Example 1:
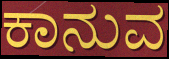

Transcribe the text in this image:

ಕಾನುವ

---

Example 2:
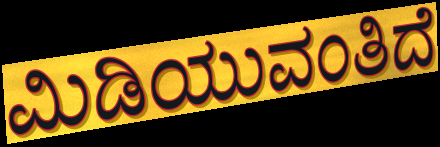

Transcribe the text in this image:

ಮಿಡಿಯುವಂತಿದೆ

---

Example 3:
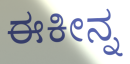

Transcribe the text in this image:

ಈಕೀನ್ನ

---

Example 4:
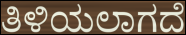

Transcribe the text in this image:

ತಿಳಿಯಲಾಗದೆ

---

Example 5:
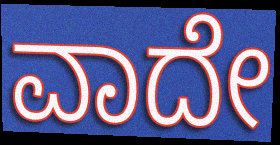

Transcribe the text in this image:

ವಾದೇ